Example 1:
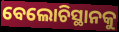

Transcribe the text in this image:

ବେଲୋଚିସ୍ଥାନକୁ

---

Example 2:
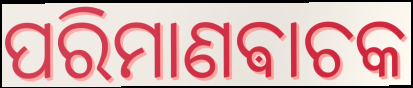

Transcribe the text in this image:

ପରିମାଣଵାଚକ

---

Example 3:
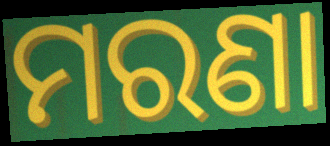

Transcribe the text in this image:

ମରଣା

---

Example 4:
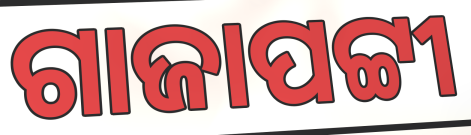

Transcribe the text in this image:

ଗାଜାପଟ୍ଟୀ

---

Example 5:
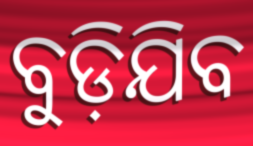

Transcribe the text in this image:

ବୁଡ଼ିଯିବ